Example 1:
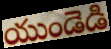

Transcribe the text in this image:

యుండెడి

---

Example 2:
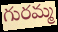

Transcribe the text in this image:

గురమ్మ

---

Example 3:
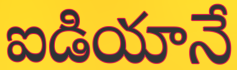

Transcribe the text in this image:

ఐడియానే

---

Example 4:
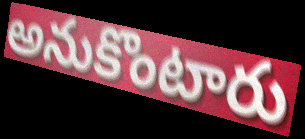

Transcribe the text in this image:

అనుకొంటారు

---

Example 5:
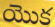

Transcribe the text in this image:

యొక